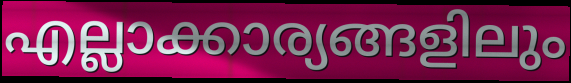
എല്ലാക്കാര്യങ്ങളിലും